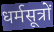
धर्मसूत्रों